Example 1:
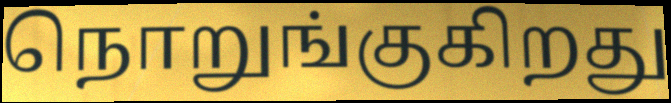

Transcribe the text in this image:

நொறுங்குகிறது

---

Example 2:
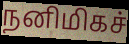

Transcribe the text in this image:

நனிமிகச்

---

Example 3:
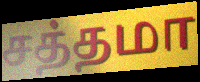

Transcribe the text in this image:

சத்தமா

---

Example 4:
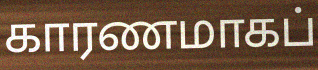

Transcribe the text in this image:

காரணமாகப்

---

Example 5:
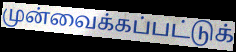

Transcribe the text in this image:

முன்வைக்கப்பட்டுக்